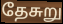
தேசுறு